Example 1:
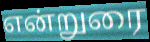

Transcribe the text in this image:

என்றுரை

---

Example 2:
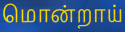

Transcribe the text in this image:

மொன்றாய்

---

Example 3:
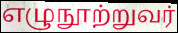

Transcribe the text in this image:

எழுநூற்றுவர்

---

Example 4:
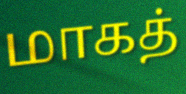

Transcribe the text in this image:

மாகத்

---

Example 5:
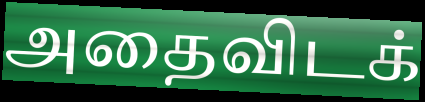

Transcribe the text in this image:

அதைவிடக்